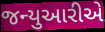
જન્યુઆરીએ